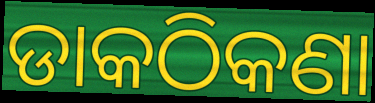
ଡାକଠିକଣା